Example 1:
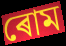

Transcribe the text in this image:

ৰোম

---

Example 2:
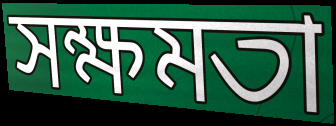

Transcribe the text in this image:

সক্ষমতা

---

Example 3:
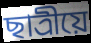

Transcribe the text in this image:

ছাত্ৰীয়ে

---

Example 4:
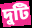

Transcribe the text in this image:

দুটি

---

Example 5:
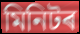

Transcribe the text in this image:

মিনিটৰ